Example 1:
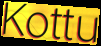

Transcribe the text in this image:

Kottu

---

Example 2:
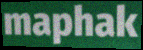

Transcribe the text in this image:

maphak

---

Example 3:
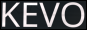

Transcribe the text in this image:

KEVO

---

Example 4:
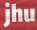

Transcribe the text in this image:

jhu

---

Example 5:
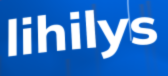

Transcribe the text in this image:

lihilys